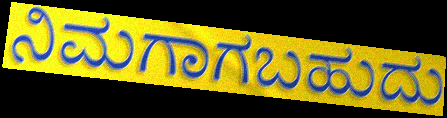
ನಿಮಗಾಗಬಹುದು